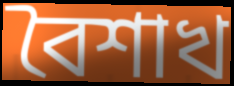
বৈশাখ